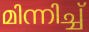
മിന്നിച്ച്